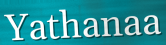
Yathanaa